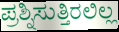
ಪ್ರಶ್ನಿಸುತ್ತಿರಲಿಲ್ಲ